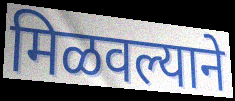
मिळवल्याने